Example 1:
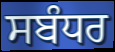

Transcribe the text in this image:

ਸਬੰਧਰ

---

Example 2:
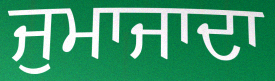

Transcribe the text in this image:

ਜੁਮਾਜਾਦਾ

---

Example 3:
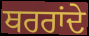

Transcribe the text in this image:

ਥਰਰਾਂਦੇ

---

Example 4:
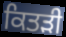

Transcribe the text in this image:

ਕਿਤੜੀ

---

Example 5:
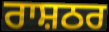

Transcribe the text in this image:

ਰਾਸ਼ਠਰ